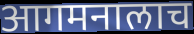
आगमनालाच